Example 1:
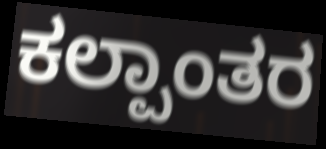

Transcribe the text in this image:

ಕಲ್ಪಾಂತರ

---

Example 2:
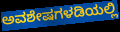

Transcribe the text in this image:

ಅವಶೇಷಗಳಡಿಯಲ್ಲಿ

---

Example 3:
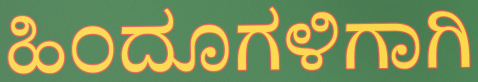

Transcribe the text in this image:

ಹಿಂದೂಗಳಿಗಾಗಿ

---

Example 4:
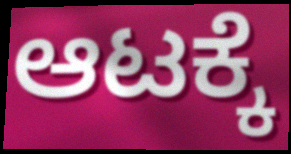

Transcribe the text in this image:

ಆಟಕ್ಕೆ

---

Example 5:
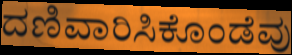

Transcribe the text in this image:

ದಣಿವಾರಿಸಿಕೊಂಡೆವು